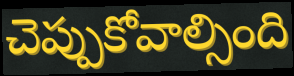
చెప్పుకోవాల్సింది